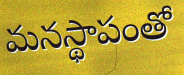
మనస్థాపంతో